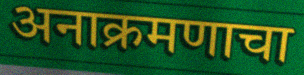
अनाक्रमणाचा